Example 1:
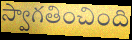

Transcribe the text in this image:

స్వాగతించింది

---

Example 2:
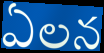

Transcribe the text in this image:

ఏలన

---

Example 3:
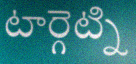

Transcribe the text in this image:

టార్గెట్ని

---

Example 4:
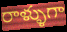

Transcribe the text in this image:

రాళ్ళుగా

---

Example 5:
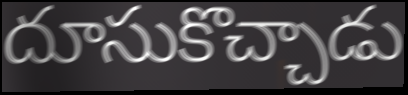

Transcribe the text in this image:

దూసుకొచ్చాడు